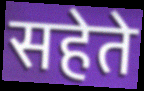
सहेते